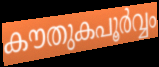
കൗതുകപൂർവ്വം